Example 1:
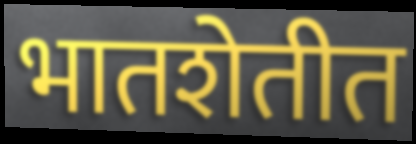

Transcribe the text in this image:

भातशेतीत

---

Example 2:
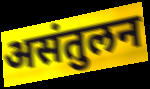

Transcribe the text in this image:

असंतुलन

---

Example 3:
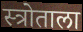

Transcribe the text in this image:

स्त्रोताला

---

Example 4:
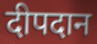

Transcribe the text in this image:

दीपदान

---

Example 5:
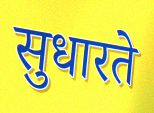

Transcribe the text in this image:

सुधारते